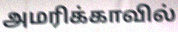
அமரிக்காவில்